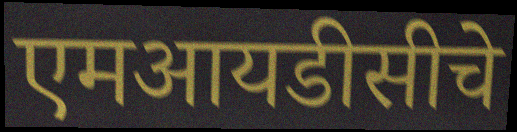
एमआयडीसीचे